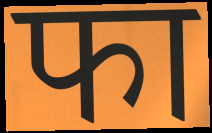
फा